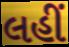
લહીં